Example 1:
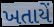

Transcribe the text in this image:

ખતાયેં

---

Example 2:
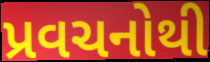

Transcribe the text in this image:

પ્રવચનોથી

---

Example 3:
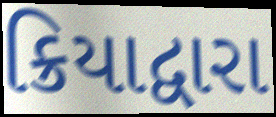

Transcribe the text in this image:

ક્રિયાદ્વારા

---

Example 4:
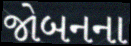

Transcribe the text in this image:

જોબનના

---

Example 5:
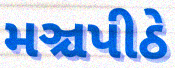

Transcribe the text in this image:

મઞ્ચપીઠે